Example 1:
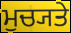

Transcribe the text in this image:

ਮੁਚ੍ਯਤੇ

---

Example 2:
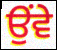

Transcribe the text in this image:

ਉੰਵੇ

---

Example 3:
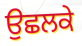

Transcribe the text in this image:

ਉਛਲਕੇ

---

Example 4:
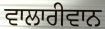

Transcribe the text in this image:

ਵਾਲਾਰੀਵਾਨ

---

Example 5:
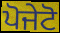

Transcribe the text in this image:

ਪੋਜੇਟੋ